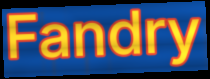
Fandry